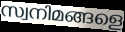
സ്വനിമങ്ങളെ